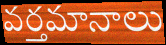
వర్తమానాలు